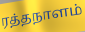
ரத்தநாளம்